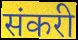
संकरी